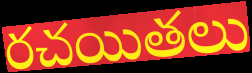
రచయితలు